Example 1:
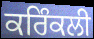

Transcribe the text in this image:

ਕਰਿੰਕਲੀ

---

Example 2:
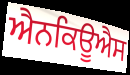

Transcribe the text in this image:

ਐਨਕਿਊਐਸ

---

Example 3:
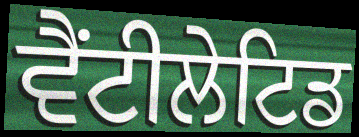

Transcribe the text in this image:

ਵੈਂਟੀਲੇਟਿਡ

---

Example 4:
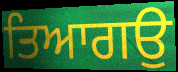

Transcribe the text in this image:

ਤਿਆਗਉ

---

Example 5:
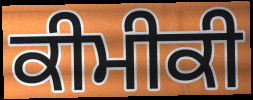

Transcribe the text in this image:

ਕੀਮੀਕੀ